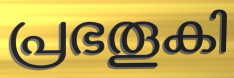
പ്രഭതൂകി